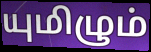
யுமிழும்